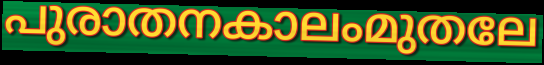
പുരാതനകാലംമുതലേ